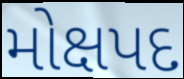
મોક્ષપદ